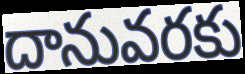
దానువరకు